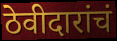
ठेवीदारांचं